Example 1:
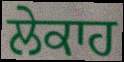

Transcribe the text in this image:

ਲੇਕਾਹ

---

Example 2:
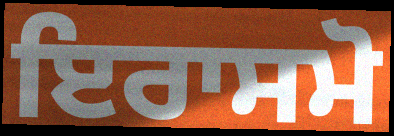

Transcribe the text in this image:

ਇਰਾਸਮੋ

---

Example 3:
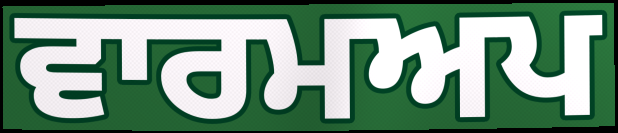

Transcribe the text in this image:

ਵਾਰਮਅਪ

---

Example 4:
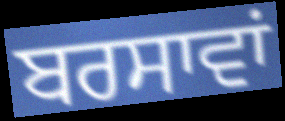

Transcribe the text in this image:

ਬਰਸਾਵਾਂ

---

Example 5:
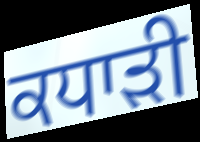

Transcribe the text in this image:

ਕਧਾੜੀ